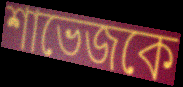
শাভেজকে